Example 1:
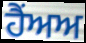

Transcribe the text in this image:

ਹੈਂਅਅ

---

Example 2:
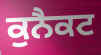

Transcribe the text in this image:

ਕੁਨੈਕਟ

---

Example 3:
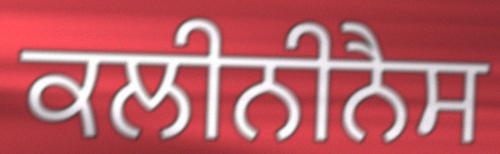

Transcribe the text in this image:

ਕਲੀਨੀਨੈਸ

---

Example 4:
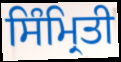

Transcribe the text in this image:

ਸਿੰਮ੍ਰਿਤੀ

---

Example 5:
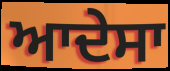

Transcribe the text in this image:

ਆਦੇਸਾ